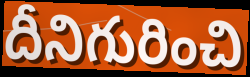
దీనిగురించి